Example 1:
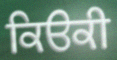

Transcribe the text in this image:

ਕਿੳਕੀ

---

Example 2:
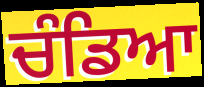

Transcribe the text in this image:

ਚੰਡਿਆ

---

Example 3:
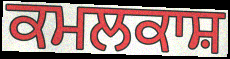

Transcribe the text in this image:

ਕਮਲਕਾਸ਼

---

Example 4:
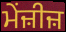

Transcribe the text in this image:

ਮੇਂਜ਼ੀਜ਼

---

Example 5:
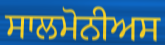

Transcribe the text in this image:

ਸਾਲਮੋਨੀਅਸ